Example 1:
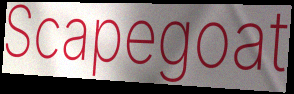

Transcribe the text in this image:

Scapegoat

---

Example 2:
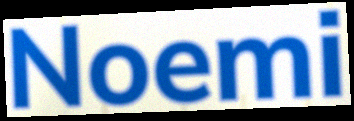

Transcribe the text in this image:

Noemi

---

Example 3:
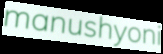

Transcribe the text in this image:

manushyoni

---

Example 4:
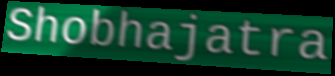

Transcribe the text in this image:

Shobhajatra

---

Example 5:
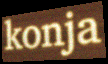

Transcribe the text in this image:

konja